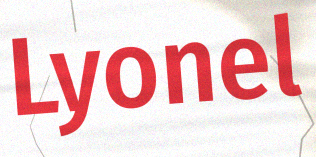
Lyonel